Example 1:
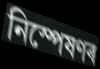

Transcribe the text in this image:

নিস্পেষণৰ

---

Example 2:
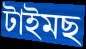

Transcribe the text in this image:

টাইমছ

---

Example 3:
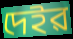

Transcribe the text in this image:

দেইৱ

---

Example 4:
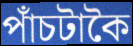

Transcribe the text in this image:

পাঁচটাকৈ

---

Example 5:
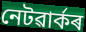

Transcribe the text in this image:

নেটৱাৰ্কৰ